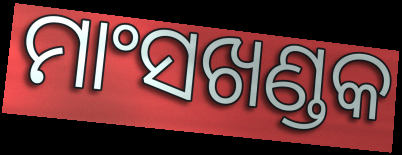
ମାଂସଖଣ୍ଡକ